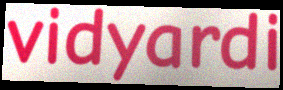
vidyardi